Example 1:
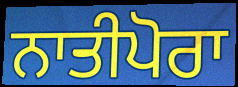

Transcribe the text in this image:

ਨਾਤੀਪੋਰਾ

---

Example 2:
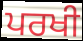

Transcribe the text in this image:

ਪਰਖੀ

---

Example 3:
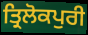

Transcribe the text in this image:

ਤ੍ਰਿਲੋਕਪੁਰੀ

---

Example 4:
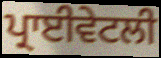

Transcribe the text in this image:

ਪ੍ਰਾਈਵੇਟਲੀ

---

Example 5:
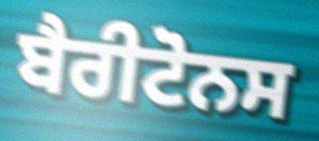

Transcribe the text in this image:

ਬੈਰੀਟੋਨਸ